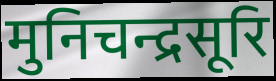
मुनिचन्द्रसूरि